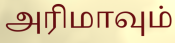
அரிமாவும்